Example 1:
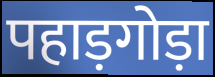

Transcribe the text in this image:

पहाड़गोड़ा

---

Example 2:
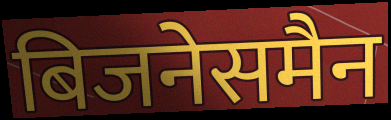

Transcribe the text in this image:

बिजनेसमैन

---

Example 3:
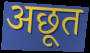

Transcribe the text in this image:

अछूत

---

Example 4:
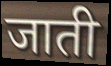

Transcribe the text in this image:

जाती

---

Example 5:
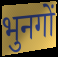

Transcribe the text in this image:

भुनगों